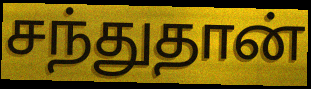
சந்துதான்